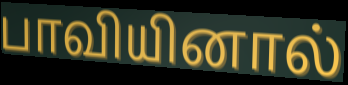
பாவியினால்